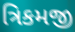
ત્રિકમજી